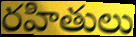
రహితులు